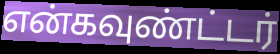
என்கவுண்ட்டர்